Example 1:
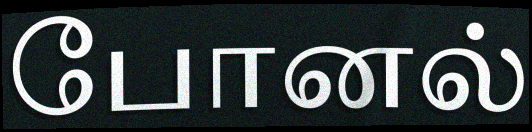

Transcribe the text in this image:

போனல்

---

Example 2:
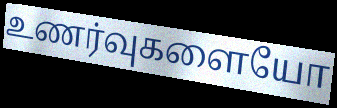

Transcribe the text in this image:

உணர்வுகளையோ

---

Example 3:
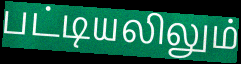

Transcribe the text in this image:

பட்டியலிலும்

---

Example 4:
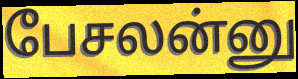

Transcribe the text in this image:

பேசலன்னு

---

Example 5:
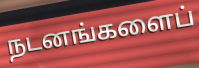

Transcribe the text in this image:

நடனங்களைப்